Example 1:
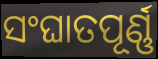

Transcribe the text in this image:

ସଂଘାତପୂର୍ଣ୍ଣ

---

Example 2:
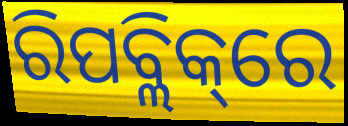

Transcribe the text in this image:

ରିପବ୍ଲିକ୍‌ରେ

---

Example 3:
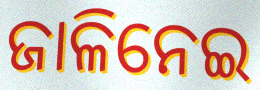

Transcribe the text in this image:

ଜାଳିନେଇ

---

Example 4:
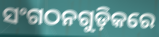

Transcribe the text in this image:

ସଂଗଠନଗୁଡ଼ିକରେ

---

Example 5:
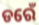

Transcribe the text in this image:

ଡରେଁ